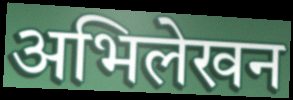
अभिलेखन